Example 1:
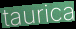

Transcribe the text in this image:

taurica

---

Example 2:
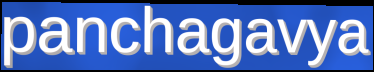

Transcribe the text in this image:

panchagavya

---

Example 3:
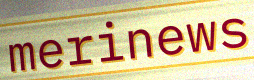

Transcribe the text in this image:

merinews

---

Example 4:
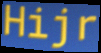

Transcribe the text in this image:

Hijr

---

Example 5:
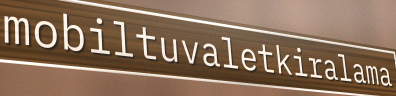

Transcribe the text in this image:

mobiltuvaletkiralama